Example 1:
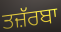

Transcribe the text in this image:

ਤਜ਼ੱਰਬਾ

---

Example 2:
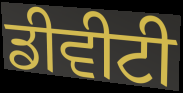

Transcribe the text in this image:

ਡੀਵੀਟੀ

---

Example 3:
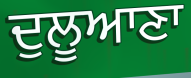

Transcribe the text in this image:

ਦੁਲੂਆਣਾ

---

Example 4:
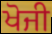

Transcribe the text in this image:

ਖੋਜੀ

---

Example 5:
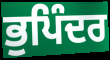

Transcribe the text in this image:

ਭੁਪਿੰਦਰ